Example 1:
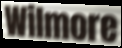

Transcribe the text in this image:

Wilmore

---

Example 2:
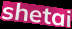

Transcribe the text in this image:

shetai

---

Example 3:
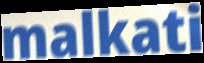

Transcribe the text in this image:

malkati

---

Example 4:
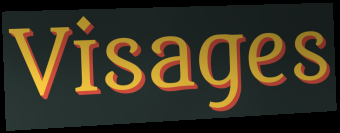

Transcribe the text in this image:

Visages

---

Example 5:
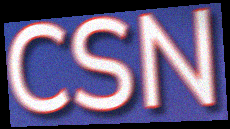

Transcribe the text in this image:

CSN